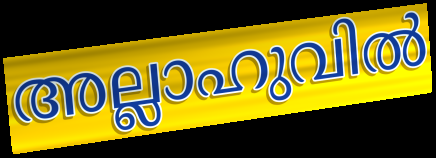
അല്ലാഹുവിൽ